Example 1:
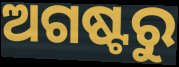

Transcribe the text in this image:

ଅଗଷ୍ଟରୁ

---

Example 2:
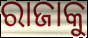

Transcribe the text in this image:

ରାଜାକୁ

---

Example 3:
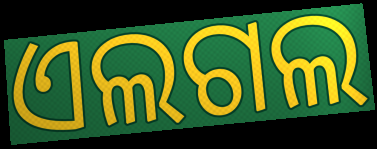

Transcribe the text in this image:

ଏଲଗଲ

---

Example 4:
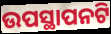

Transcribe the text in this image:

ଉପସ୍ଥାପନଟି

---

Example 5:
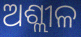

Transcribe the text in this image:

ଅଶ୍ଲୀଳ